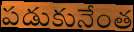
పడుకునేంత